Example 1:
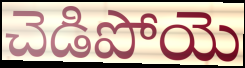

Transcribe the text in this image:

చెడిపోయె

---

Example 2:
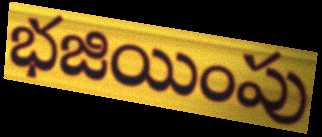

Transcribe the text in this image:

భజియింపు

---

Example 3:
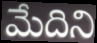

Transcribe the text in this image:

మేదిని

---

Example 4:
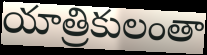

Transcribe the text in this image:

యాత్రికులంతా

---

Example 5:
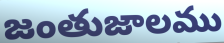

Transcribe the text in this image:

జంతుజాలము